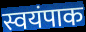
स्वयंपाक